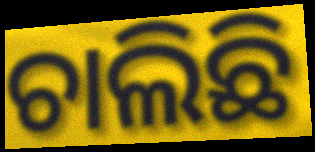
ଚାଲିଛି